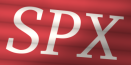
SPX